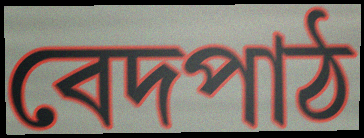
বেদপাঠ